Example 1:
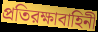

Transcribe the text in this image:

প্রতিরক্ষাবাহিনী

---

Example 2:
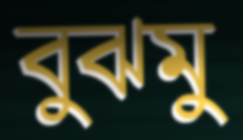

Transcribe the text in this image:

বুঝমু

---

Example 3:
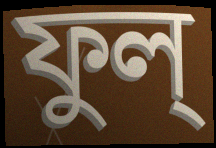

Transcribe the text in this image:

ফুল্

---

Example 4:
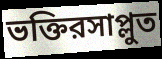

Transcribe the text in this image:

ভক্তিরসাপ্লুত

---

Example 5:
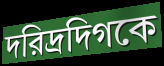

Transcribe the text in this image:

দরিদ্রদিগকে